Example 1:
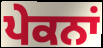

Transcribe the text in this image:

ਪੇਕਨਾਂ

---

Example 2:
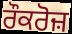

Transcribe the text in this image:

ਰੌਕਰੋਜ਼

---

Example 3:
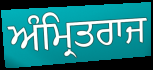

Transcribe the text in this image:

ਅੰਮ੍ਰਿਤਰਾਜ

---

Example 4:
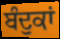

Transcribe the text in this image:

ਬੰਦੁਕਾਂ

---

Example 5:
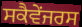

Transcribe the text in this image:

ਸਕੈਵੇਂਜਰਸ